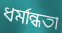
ধর্মান্ধতা